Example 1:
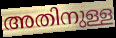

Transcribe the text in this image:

അതിനുള്ള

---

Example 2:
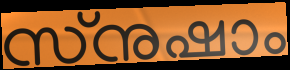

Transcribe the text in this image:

സ്നുഷാം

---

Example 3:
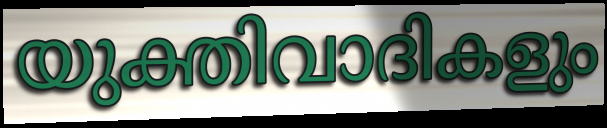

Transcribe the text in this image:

യുക്തിവാദികളും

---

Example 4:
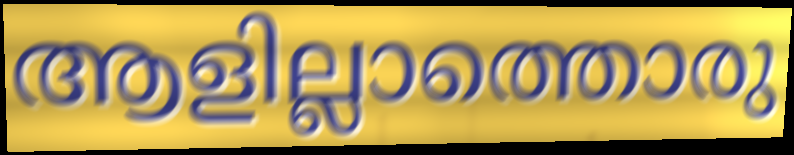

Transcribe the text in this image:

ആളില്ലാത്തൊരു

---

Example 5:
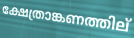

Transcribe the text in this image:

ക്ഷേത്രാങ്കണത്തില്